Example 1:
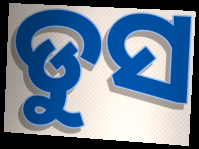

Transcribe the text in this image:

ଡୁସ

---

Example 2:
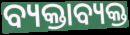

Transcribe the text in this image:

ବ୍ୟକ୍ତାବ୍ୟକ୍ତ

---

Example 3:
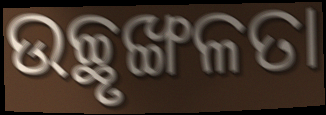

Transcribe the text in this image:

ଉଚ୍ଛୃଙ୍ଖଳତା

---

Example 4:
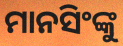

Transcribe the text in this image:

ମାନସିଂଙ୍କୁ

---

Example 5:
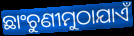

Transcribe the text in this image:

ଛାଂଚୁଣୀମୁଠାଯାଏଁ